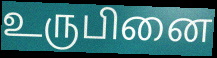
உருபினை